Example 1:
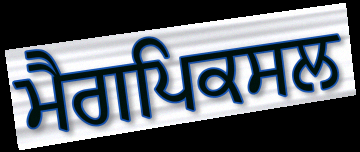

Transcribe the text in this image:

ਮੈਗਪਿਕਸਲ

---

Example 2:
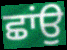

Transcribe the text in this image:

ਛਾਂਉ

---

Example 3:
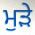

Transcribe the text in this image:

ਮੁੜੇ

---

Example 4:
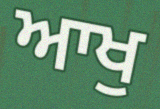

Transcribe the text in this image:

ਆਖੁ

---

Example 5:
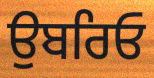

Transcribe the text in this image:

ਉਬਰਿਓ